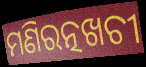
ମଣିରତ୍ନଖଚୀ